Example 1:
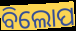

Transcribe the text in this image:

ବିଲୋପ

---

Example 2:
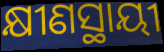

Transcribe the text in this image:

କ୍ଷୀଣସ୍ଥାୟୀ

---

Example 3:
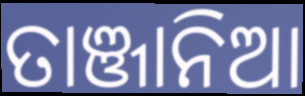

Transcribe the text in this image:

ତାଞ୍ଜାନିଆ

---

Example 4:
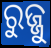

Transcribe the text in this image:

ରୁଜ୍ଜୁ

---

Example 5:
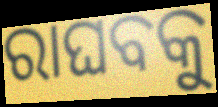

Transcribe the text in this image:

ରାଘବକୁ